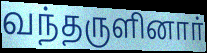
வந்தருளினார்